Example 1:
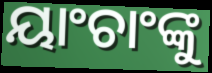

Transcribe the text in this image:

ୟାଂଚାଂଙ୍କୁ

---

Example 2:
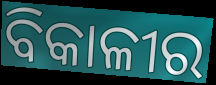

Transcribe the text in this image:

ବିକାଳୀର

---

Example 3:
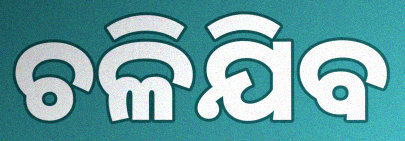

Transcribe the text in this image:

ଚଳିଯିବ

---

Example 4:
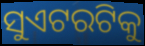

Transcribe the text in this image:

ସୁଏଟରଟିକୁ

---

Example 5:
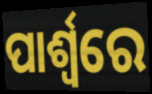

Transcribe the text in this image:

ପାର୍ଶ୍ଵରେ